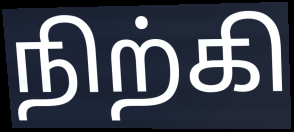
நிற்கி